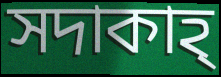
সদাকাহ্